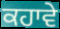
ਕਹਾਵੇ